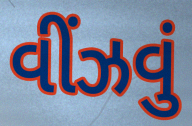
વીંઝવું